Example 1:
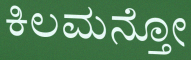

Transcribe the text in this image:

ಕಿಲಮನ್ತೋ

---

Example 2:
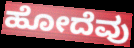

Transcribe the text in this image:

ಹೋದೆವು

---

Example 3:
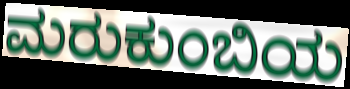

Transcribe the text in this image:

ಮರುಕುಂಬಿಯ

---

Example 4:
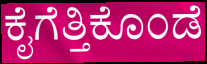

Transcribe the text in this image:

ಕೈಗೆತ್ತಿಕೊಂಡೆ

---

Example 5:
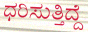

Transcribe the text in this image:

ಧರಿಸುತ್ತಿದ್ದೆ